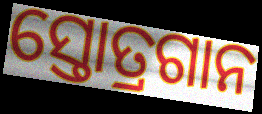
ସ୍ତୋତ୍ରଗାନ